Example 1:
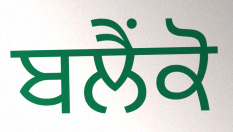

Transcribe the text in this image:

ਬਲੈਂਕੋ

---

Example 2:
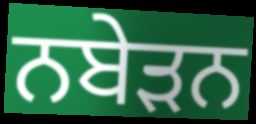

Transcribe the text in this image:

ਨਬੇੜਨ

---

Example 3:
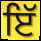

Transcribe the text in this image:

ਇੱ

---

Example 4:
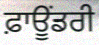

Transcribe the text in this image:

ਫ਼ਾਊਂਡਰੀ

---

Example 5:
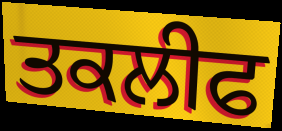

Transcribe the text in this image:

ਤਕਲੀਫ